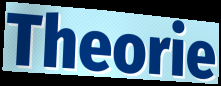
Theorie